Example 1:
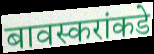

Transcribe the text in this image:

बावस्करांकडे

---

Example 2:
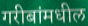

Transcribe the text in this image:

गरीबांमधील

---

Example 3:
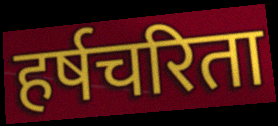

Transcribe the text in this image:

हर्षचरिता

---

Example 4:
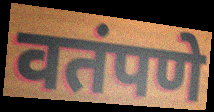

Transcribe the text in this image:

वतंपणे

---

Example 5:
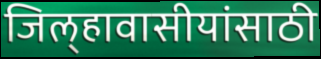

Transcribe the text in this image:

जिल्हावासीयांसाठी